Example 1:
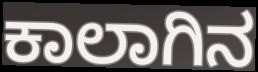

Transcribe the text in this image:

ಕಾಲಾಗಿನ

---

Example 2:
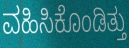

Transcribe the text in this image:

ವಹಿಸಿಕೊಂಡಿತ್ತು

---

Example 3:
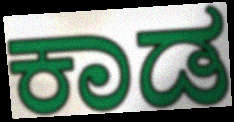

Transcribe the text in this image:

ಕಾಡ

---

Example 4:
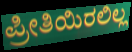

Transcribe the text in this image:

ಪ್ರೀತಿಯಿರಲಿಲ್ಲ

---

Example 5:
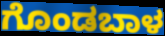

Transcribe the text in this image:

ಗೊಂಡಬಾಳ